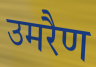
उमरैण